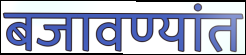
बजावण्यांत